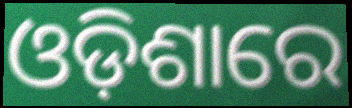
ଓଡ଼ିଶାରେ